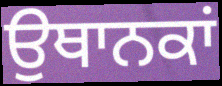
ਉਥਾਨਕਾਂ